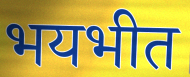
भयभीत